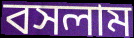
বসলাম